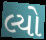
લ્યો